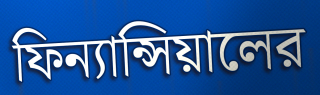
ফিন্যান্সিয়ালের